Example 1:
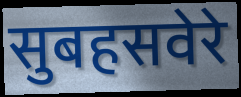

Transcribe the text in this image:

सुबहसवेरे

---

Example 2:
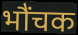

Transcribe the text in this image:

भौंचक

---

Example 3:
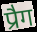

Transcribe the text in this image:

प्रैग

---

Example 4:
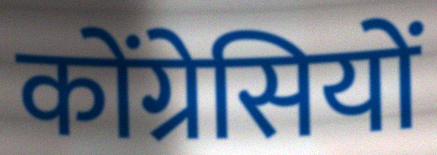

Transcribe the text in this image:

कोंग्रेसियों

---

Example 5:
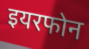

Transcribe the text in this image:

इयरफोन